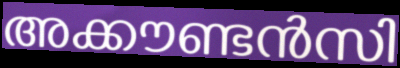
അക്കൗണ്ടൻസി